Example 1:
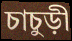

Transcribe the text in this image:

চাচুড়ী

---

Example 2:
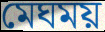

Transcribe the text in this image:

মেঘময়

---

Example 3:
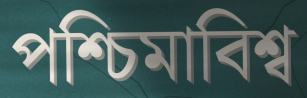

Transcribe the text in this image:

পশ্চিমাবিশ্ব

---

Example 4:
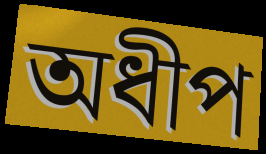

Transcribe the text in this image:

অধীপ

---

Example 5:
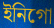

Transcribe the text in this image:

ইনিগো